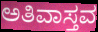
ಅತಿವಾಸ್ತವ